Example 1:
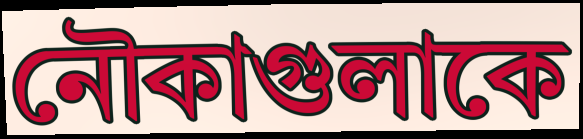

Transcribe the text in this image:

নৌকাগুলাকে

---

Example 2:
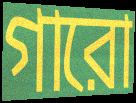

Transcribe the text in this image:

গারো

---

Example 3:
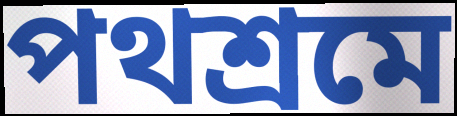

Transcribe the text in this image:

পথশ্রমে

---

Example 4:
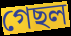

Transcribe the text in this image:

গেছল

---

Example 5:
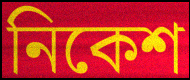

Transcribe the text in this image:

নিকেশ